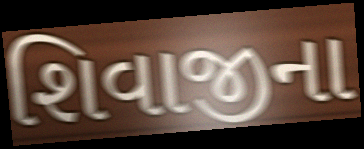
શિવાજીના